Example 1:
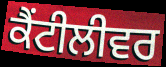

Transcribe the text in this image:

ਕੈਂਟੀਲੀਵਰ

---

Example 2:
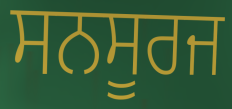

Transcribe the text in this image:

ਸਨਸੂਰਜ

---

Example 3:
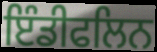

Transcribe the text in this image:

ਇੰਡੀਫਲਿਨ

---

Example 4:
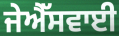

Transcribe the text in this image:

ਜੇਐੱਸਵਾਈ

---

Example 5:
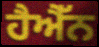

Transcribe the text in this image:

ਹੈਐੱਨ